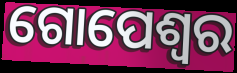
ଗୋପେଶ୍ଵର